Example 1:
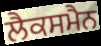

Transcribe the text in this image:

ਲੈਕਸਮੈਨ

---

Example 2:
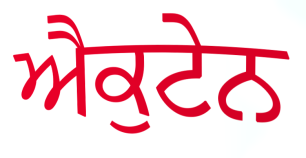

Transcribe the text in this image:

ਐਕੁਟੇਨ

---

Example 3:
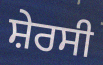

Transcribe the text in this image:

ਸ਼ੇਰਸੀ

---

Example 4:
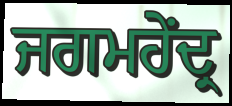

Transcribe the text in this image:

ਜਗਮਹੇਂਦ੍ਰ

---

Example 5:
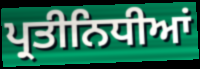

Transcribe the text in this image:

ਪ੍ਰਤੀਨਿਧੀਆਂ